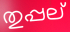
തുപ്പല്